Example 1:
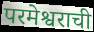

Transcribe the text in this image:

परमेश्वराची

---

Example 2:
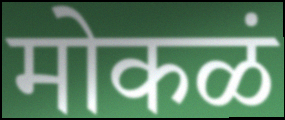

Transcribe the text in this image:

मोकळं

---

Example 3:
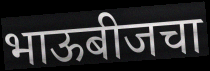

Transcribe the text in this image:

भाऊबीजचा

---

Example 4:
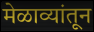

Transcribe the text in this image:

मेळाव्यांतून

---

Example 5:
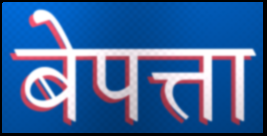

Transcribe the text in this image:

बेपत्ता